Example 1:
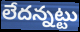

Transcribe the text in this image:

లేదన్నట్టు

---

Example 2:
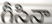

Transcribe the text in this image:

గీసినా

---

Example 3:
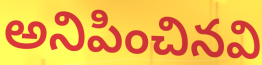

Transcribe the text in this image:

అనిపించినవి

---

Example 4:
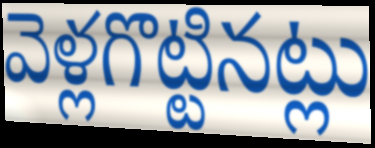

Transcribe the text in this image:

వెళ్లగొట్టినట్లు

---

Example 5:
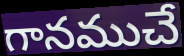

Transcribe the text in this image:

గానముచే